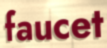
faucet